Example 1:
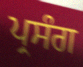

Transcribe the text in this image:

ਪ੍ਰਸੰਗ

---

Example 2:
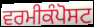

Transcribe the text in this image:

ਵਰਮੀਕੰਪੋਸਟ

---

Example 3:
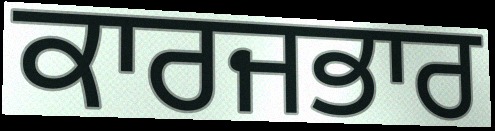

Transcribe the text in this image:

ਕਾਰਜਭਾਰ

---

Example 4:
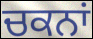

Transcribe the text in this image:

ਚਕਨਾਂ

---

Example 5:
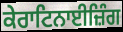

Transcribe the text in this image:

ਕੇਰਾਟਿਨਾਈਜ਼ਿੰਗ